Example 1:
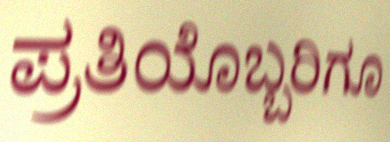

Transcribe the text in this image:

ಪ್ರತಿಯೊಬ್ಬರಿಗೂ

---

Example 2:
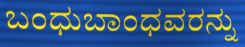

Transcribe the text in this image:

ಬಂಧುಬಾಂಧವರನ್ನು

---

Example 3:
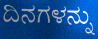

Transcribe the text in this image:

ದಿನಗಳನ್ನು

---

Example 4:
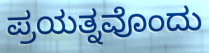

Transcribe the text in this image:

ಪ್ರಯತ್ನವೊಂದು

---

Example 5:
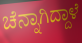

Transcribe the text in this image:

ಚೆನ್ನಾಗಿದ್ದಾಳೆ